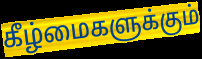
கீழ்மைகளுக்கும்